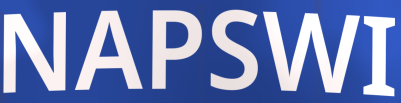
NAPSWI